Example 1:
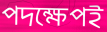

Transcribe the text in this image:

পদক্ষেপই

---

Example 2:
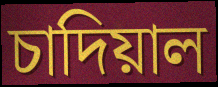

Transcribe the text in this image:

চাদিয়াল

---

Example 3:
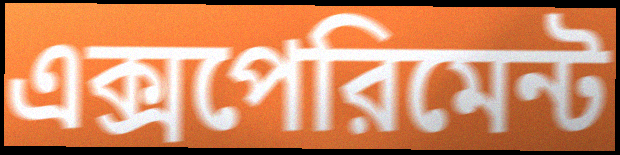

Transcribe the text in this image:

এক্সপেরিমেন্ট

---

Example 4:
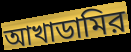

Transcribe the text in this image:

আখাডামির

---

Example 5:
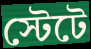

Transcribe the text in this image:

স্টেটে